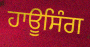
ਹਾਊਸਿੰਗ